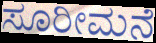
ಸೂರೀಮನೆ